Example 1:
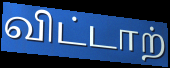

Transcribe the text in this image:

விட்டாற்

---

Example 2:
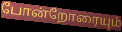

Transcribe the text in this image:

போன்றோரையும்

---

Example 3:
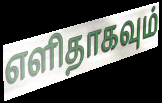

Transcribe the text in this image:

எளிதாகவும்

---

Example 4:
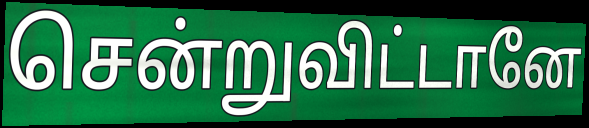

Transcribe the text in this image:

சென்றுவிட்டானே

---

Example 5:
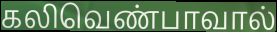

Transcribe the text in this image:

கலிவெண்பாவால்